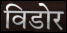
विडोर